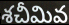
శచీమివ